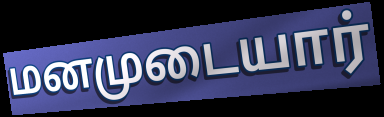
மனமுடையார்